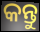
କନ୍ତୁ